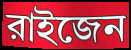
রাইজেন